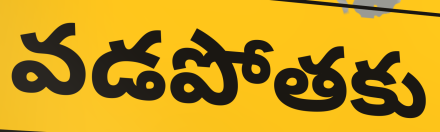
వడపోతకు